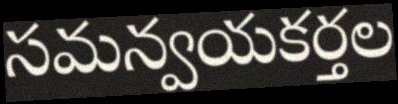
సమన్వయకర్తల